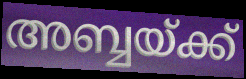
അബ്ബയ്ക്ക്